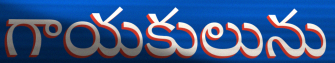
గాయకులును